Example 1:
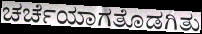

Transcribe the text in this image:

ಚರ್ಚೆಯಾಗತೊಡಗಿತು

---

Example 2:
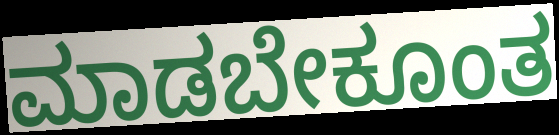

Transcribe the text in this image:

ಮಾಡಬೇಕೂಂತ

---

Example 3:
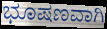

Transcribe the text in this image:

ಭೂಷಣವಾಗಿ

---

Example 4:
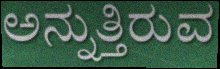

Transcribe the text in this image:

ಅನ್ನುತ್ತಿರುವ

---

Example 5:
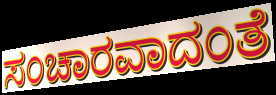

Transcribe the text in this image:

ಸಂಚಾರವಾದಂತೆ